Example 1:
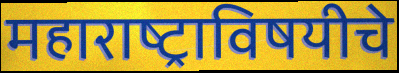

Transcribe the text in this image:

महाराष्ट्राविषयीचे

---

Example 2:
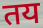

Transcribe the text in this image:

तय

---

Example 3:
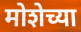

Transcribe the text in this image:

मोशेच्या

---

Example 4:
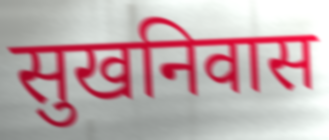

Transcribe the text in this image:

सुखनिवास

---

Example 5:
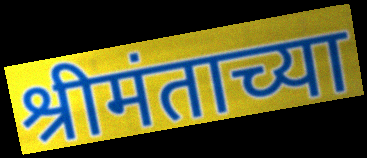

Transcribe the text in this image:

श्रीमंताच्या